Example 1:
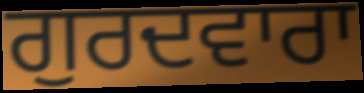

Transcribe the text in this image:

ਗੁਰਦਵਾਰਾ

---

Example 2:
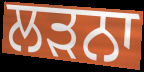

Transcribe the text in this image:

ਲੜਨਾ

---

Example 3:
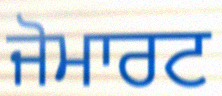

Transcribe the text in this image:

ਜੋਮਾਰਟ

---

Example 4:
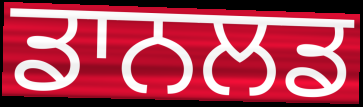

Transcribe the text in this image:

ਡਾਨਲਡ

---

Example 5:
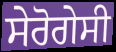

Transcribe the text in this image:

ਸੇਰੋਗੇਸੀ